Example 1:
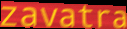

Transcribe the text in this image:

zavatra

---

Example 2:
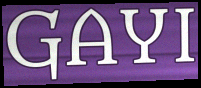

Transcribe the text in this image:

GAYI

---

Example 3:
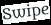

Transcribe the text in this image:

Swipe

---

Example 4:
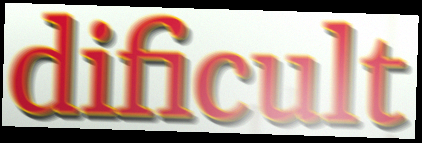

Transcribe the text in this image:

dificult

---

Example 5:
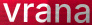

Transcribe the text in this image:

vrana